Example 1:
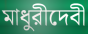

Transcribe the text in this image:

মাধুরীদেবী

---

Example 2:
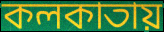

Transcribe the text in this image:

কলকাতায়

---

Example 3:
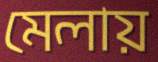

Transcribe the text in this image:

মেলায়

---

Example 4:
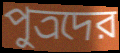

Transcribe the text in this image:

পুত্রদের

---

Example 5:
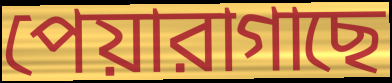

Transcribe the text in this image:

পেয়ারাগাছে